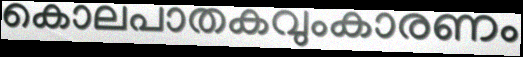
കൊലപാതകവുംകാരണം